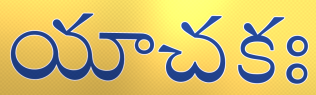
యాచకః